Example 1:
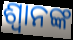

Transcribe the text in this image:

ଶ୍ବାନଙ୍କ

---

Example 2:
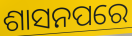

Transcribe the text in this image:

ଶାସନପରେ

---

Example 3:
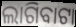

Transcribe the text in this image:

ଲାଗିବାଟା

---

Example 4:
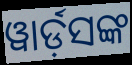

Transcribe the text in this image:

ୱାର୍ଡ଼ସଙ୍କ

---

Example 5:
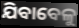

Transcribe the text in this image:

ଯିବାବେଳୁ